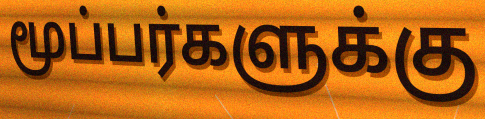
மூப்பர்களுக்கு